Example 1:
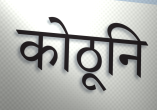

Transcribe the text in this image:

कोठूनि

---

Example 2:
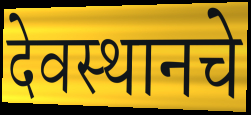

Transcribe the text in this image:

देवस्थानचे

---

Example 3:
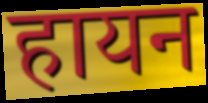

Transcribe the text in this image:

हायन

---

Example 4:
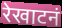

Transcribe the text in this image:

रेखाटनं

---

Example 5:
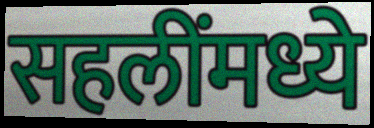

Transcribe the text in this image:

सहलींमध्ये